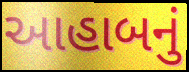
આહાબનું